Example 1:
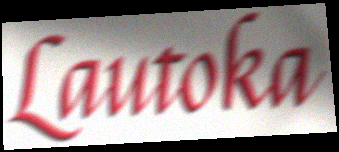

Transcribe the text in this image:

Lautoka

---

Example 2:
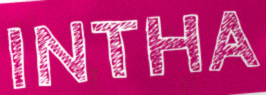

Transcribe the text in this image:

INTHA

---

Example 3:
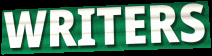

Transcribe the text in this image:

WRITERS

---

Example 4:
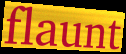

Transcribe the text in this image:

flaunt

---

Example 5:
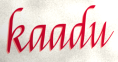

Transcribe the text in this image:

kaadu